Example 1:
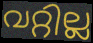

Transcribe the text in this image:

വറ്റില്ല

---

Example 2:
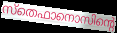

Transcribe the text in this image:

സ്തെഫാനൊസിന്റെ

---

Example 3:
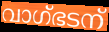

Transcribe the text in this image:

വാഗ്ഭടന്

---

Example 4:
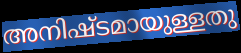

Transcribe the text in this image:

അനിഷ്ടമായുള്ളതു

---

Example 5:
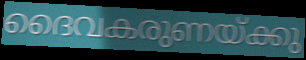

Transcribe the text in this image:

ദൈവകരുണയ്ക്കു